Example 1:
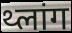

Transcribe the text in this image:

थ्लांग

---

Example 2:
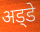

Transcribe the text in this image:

अड्‍डे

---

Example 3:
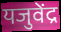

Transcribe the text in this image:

यजुवेंद्र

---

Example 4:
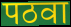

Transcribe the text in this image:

पठवा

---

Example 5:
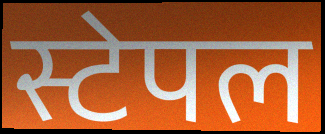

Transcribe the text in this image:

स्टेपल